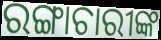
ରଙ୍ଗାଚାରୀଙ୍କ